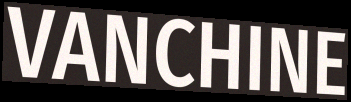
VANCHINE